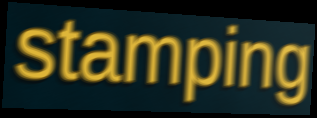
stamping